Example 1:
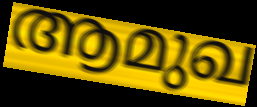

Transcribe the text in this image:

ആമുഖ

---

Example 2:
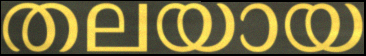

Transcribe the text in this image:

തലയായ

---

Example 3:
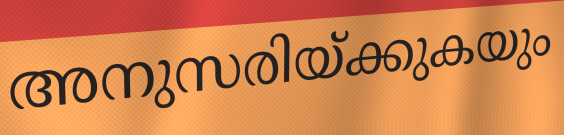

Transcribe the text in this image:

അനുസരിയ്ക്കുകയും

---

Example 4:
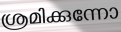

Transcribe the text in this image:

ശ്രമിക്കുന്നോ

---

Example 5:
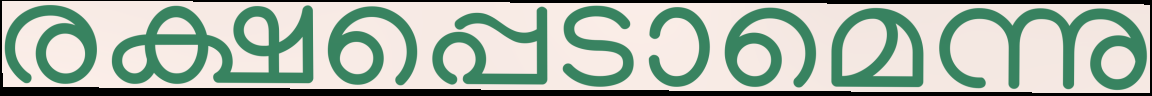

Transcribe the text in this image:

രക്ഷപ്പെടാമെന്നു